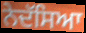
ਨੇਦੱਸਿਆ